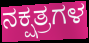
ನಕ್ಷತ್ರಗಳ